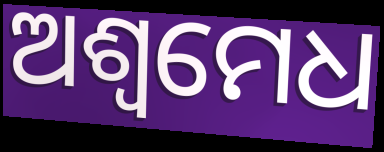
ଅଶ୍ବମେଧ